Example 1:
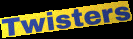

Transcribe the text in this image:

Twisters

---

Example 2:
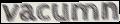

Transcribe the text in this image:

vacumn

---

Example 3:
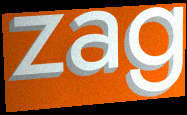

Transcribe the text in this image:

zag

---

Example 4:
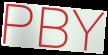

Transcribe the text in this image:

PBY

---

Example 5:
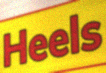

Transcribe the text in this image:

Heels